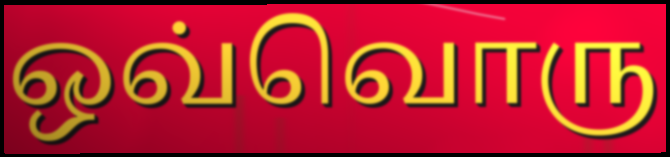
ஒவ்வொரு